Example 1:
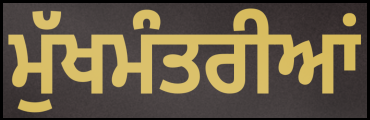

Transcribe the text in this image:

ਮੁੱਖਮੰਤਰੀਆਂ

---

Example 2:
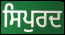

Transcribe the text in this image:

ਸਿਪੁਰਦ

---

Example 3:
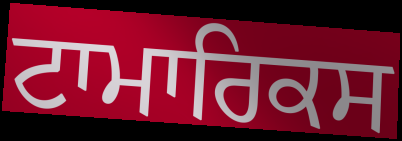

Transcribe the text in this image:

ਟਾਮਾਰਿਕਸ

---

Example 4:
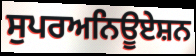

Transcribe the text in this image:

ਸੁਪਰਅਨਿਊਏਸ਼ਨ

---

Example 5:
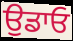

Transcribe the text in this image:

ਉਡਾਓ